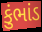
કુંભાંડ